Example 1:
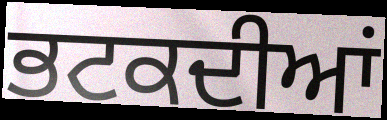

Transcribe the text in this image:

ਭਟਕਦੀਆਂ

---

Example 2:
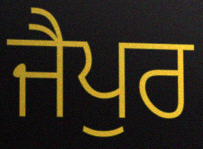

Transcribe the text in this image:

ਜੈਪੁਰ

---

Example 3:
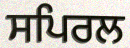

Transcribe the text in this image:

ਸਪਿਰਲ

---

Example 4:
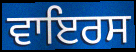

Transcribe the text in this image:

ਵਾਇਰਸ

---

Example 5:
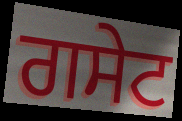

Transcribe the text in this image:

ਗਸੇਟ